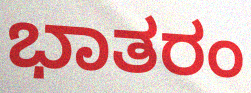
ಭಾತರಂ